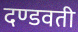
दण्डवती